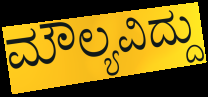
ಮೌಲ್ಯವಿದ್ದು